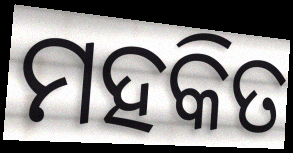
ମହକିତ